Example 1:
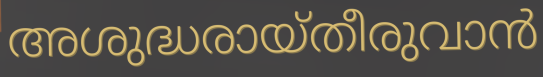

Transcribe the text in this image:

അശുദ്ധരായ്തീരുവാൻ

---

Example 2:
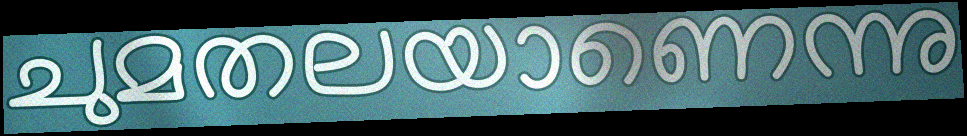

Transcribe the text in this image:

ചുമതലയാണെന്നു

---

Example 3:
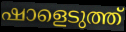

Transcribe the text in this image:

ഷാളെടുത്ത്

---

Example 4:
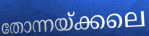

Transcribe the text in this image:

തോന്നയ്ക്കലെ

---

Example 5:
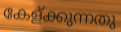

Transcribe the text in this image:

കേള്ക്കുന്നതു